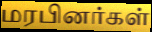
மரபினர்கள்